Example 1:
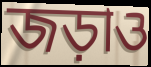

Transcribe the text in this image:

জড়াও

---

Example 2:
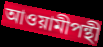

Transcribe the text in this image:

আওয়ামীপন্থী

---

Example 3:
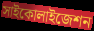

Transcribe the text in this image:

সাইকোলাইজেশন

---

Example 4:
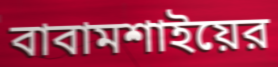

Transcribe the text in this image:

বাবামশাইয়ের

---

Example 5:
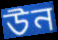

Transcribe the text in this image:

উন